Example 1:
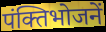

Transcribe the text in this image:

पंक्तिभोजनें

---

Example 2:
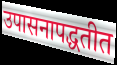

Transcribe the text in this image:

उपासनापद्धतीत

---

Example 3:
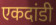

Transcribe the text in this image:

एकदांडी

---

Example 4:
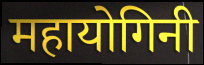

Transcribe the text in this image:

महायोगिनी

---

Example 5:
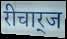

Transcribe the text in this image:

रीचार्ज